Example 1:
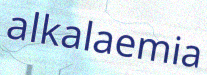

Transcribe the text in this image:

alkalaemia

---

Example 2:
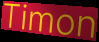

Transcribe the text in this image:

Timon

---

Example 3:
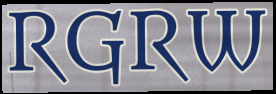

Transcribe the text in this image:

RGRW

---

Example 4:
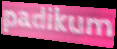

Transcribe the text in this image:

padikum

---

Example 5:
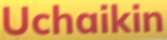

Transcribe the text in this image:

Uchaikin